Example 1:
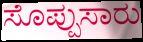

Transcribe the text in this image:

ಸೊಪ್ಪುಸಾರು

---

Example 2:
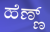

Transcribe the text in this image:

ಹೆಣ್ಣ್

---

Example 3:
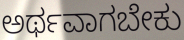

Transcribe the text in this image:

ಅರ್ಥವಾಗಬೇಕು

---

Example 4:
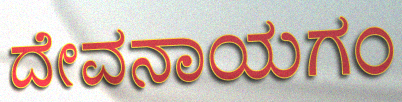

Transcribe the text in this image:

ದೇವನಾಯಗಂ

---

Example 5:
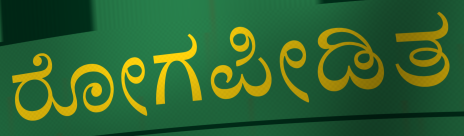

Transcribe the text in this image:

ರೋಗಪೀಡಿತ